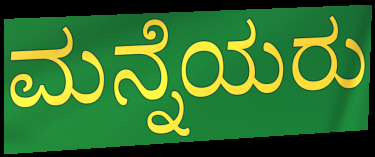
ಮನ್ನೆಯರು